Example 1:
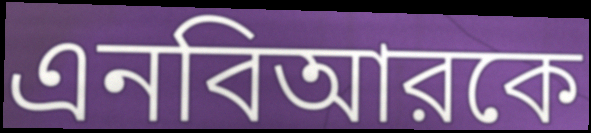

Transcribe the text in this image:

এনবিআরকে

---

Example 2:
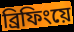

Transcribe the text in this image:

ব্রিফিংয়ে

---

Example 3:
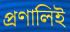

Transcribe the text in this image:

প্রণালিই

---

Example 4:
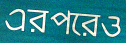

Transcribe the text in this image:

এরপরেও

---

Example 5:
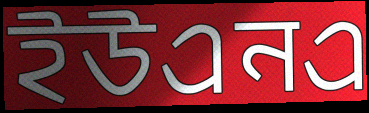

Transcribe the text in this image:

ইউএনএ